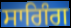
ਸਾਗਿੰਗ